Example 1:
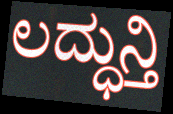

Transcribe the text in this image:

ಲದ್ಧುನ್ತಿ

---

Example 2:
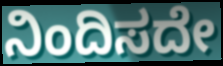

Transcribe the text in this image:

ನಿಂದಿಸದೇ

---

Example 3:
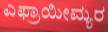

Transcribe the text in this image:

ಎಫ್ರಾಯೀಮ್ಯರ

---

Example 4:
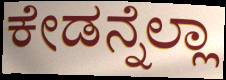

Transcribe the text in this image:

ಕೇಡನ್ನೆಲ್ಲಾ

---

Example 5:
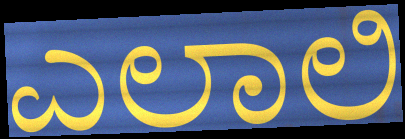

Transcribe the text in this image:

ಎಲಾಲಿ